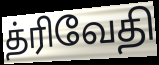
த்ரிவேதி